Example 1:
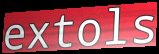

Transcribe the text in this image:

extols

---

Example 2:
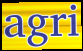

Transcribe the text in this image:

agri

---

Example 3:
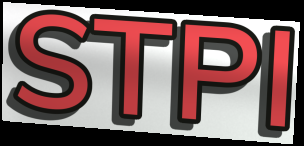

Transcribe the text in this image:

STPI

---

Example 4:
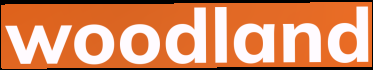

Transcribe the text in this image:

woodland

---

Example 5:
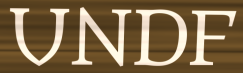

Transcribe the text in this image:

UNDF